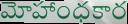
మోహాంధకార